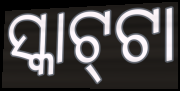
ସ୍କାଟ୍‌ଟା